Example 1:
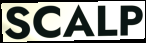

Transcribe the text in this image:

SCALP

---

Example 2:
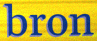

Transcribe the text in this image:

bron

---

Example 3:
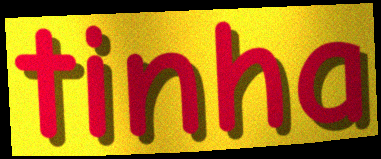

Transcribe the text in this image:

tinha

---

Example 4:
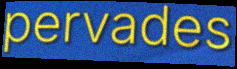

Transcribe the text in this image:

pervades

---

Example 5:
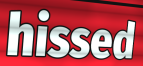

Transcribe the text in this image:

hissed